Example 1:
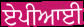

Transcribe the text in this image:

ਏਪੀਆਈ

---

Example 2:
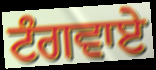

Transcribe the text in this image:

ਟੰਗਵਾਏ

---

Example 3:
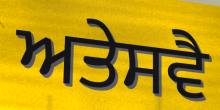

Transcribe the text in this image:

ਅਤੇਸਵੈ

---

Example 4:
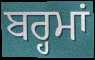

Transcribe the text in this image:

ਬਰ੍ਹਮਾਂ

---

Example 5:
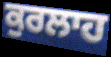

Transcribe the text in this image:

ਕੁਰਲਾਹ